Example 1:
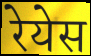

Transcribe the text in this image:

रेयेस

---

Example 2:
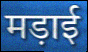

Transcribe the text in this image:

मड़ाई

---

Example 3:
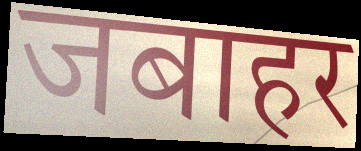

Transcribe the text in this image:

जबाहर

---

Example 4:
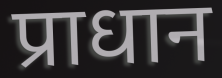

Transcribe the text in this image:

प्राधान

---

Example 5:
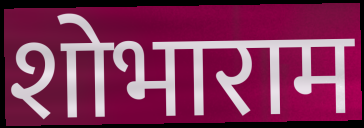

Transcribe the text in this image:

शोभाराम